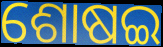
ଶୋଷଇ